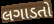
લગાડતો